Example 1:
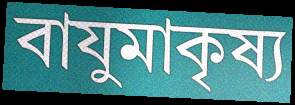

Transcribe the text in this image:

বাযুমাকৃষ্য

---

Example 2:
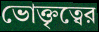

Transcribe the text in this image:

ভোক্তৃত্বের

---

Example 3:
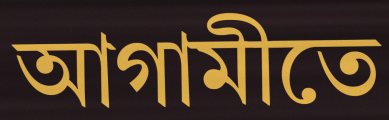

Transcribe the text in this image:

আগামীতে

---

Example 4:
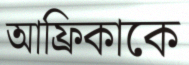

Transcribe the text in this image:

আফ্রিকাকে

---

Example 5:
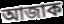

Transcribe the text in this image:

আজাক